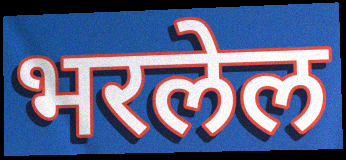
भरलेल